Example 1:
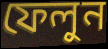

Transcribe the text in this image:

ফেলুন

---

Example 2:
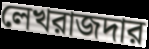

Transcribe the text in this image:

লেখরাজদার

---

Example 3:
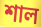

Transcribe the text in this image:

শাল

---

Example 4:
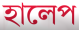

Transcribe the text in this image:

হালেপ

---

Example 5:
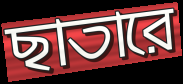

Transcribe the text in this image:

ছাতারে